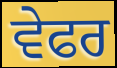
ਵੇਫਰ